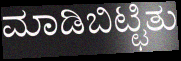
ಮಾಡಿಬಿಟ್ಟಿತು